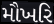
મૌખરિ